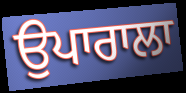
ਉਪਾਰਾਲਾ